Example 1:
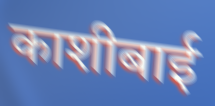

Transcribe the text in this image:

काशीबाई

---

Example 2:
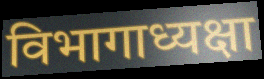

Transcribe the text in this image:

विभागाध्यक्षा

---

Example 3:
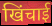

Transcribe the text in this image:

खिंचाई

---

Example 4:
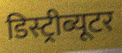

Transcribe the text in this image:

डिस्ट्रीब्यूटर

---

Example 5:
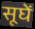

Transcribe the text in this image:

सूघें